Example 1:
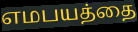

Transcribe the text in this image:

எமபயத்தை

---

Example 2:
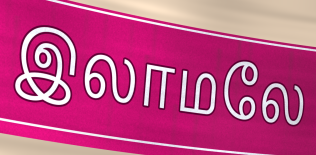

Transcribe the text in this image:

இலாமலே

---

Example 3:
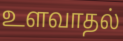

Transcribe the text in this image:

உளவாதல்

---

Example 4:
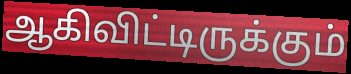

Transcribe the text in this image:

ஆகிவிட்டிருக்கும்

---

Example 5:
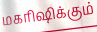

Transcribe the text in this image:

மகரிஷிக்கும்